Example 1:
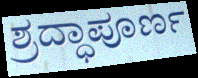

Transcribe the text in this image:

ಶ್ರದ್ಧಾಪೂರ್ಣ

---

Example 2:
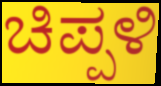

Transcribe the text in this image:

ಚಿಪ್ಪಳಿ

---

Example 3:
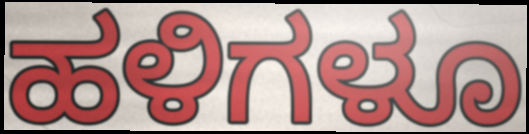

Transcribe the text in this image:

ಹಳಿಗಳೂ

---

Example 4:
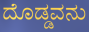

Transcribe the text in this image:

ದೊಡ್ಡವನು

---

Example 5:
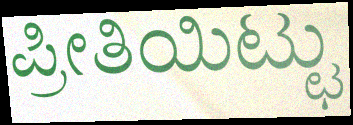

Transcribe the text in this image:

ಪ್ರೀತಿಯಿಟ್ಟು